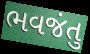
ભવજંતુ